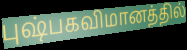
புஷ்பகவிமானத்தில்